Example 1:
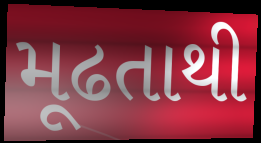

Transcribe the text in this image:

મૂઢતાથી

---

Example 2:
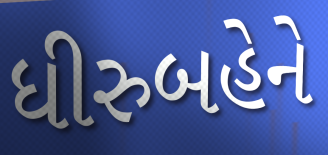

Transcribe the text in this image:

ધીરુબહેને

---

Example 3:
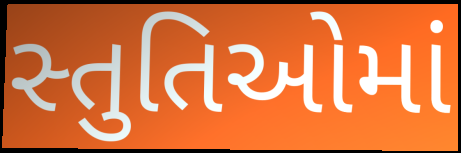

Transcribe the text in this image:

સ્તુતિઓમાં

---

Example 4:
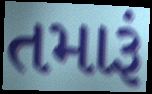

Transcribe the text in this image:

તમારૂં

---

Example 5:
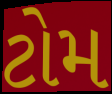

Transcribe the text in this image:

ટોમ